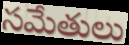
సమేతులు